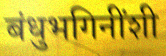
बंधुभगिनींशी